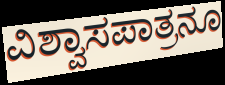
ವಿಶ್ವಾಸಪಾತ್ರನೂ